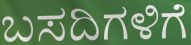
ಬಸದಿಗಳಿಗೆ